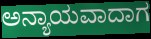
ಅನ್ಯಾಯವಾದಾಗ